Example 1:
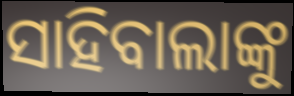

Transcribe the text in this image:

ସାହିବାଲାଙ୍କୁ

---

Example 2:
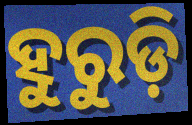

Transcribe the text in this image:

ହୁରୁଡ଼ି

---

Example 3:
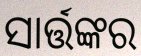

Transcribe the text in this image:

ସାର୍ତ୍ତଙ୍କର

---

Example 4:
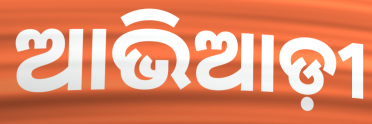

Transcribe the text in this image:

ଆଭିଆଡ଼ୀ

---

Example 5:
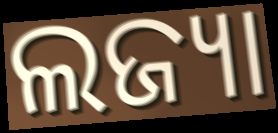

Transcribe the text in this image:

ଲଜ୍ୟା